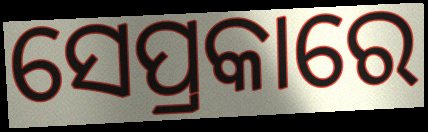
ସେପ୍ରକାରେ